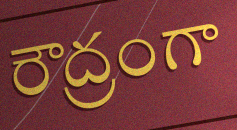
రౌద్రంగా